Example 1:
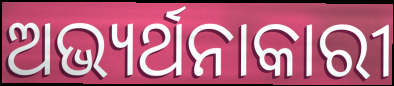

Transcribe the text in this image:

ଅଭ୍ୟର୍ଥନାକାରୀ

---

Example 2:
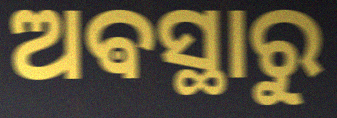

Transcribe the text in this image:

ଅଵସ୍ଥାରୁ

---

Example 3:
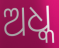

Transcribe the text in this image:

ଅଧ୍କ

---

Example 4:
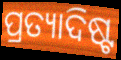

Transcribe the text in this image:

ପ୍ରତ୍ୟାଦିଷ୍ଟ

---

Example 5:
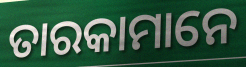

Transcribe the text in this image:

ତାରକାମାନେ